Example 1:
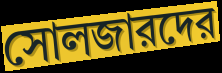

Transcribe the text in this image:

সোলজারদের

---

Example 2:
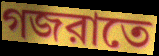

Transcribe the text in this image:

গজরাতে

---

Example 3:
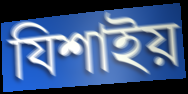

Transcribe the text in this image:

যিশাইয়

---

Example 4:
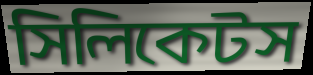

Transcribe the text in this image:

সিলিকেটস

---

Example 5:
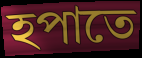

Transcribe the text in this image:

হপাতে